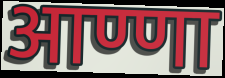
आण्णा